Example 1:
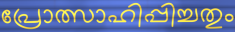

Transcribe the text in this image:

പ്രോത്സാഹിപ്പിച്ചതും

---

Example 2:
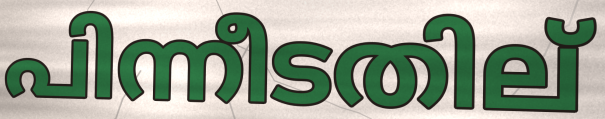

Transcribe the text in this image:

പിന്നീടതില്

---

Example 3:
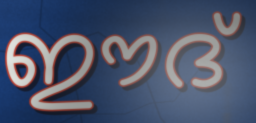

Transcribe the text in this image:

ഈദ്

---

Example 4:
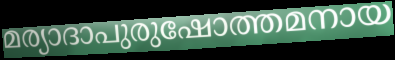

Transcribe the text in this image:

മര്യാദാപുരുഷോത്തമനായ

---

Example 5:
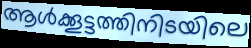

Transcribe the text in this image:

ആൾക്കൂട്ടത്തിനിടയിലെ